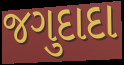
જગુદાદા